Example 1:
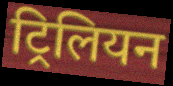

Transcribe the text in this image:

ट्रिलियन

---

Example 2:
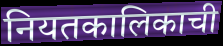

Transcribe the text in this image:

नियतकालिकाची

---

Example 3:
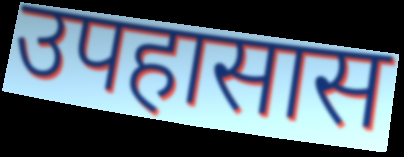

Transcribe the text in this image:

उपहासास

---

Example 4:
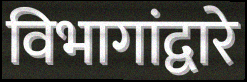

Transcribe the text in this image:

विभागांद्वारे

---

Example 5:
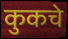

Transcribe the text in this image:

कुकचे